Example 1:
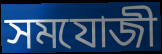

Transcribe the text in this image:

সমযোজী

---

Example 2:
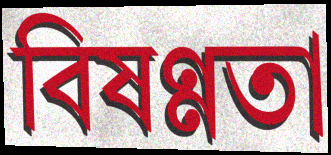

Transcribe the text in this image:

বিষণ্ণতা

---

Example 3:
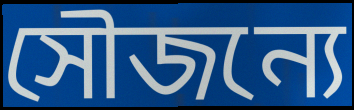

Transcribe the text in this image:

সৌজন্যে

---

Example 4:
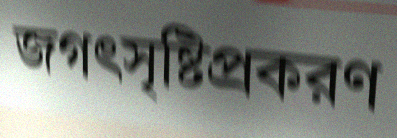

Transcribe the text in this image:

জগৎসৃষ্টিপ্রকরণ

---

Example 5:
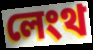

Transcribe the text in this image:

লেংথ